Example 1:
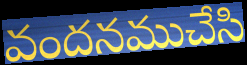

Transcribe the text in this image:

వందనముచేసి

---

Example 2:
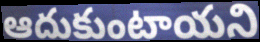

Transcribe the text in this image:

ఆదుకుంటాయని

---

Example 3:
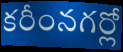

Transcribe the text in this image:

కరీంనగర్లో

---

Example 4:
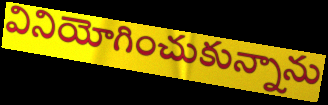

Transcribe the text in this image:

వినియోగించుకున్నాను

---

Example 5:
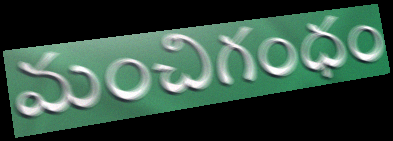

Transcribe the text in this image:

మంచిగంధం